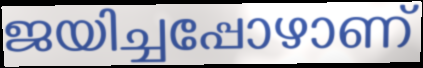
ജയിച്ചപ്പോഴാണ്